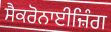
ਸੈਕਰੋਨਾਈਜ਼ਿੰਗ